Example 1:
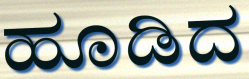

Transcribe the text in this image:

ಹೂಡಿದ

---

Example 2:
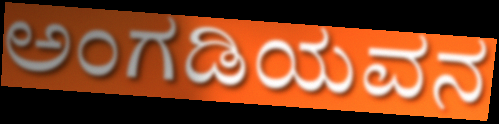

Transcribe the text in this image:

ಅಂಗಡಿಯವನ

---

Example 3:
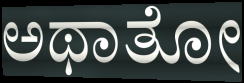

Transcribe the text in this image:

ಅಥಾತೋ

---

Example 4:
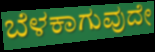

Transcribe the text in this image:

ಬೆಳಕಾಗುವುದೇ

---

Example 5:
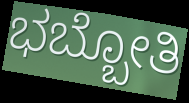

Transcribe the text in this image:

ಭಬ್ಬೋತಿ